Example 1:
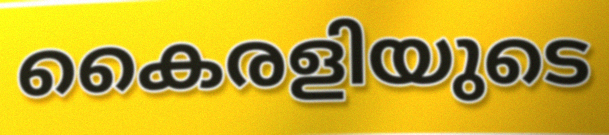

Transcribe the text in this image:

കൈരളിയുടെ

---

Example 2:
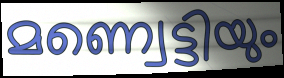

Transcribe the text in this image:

മണ്വെട്ടിയും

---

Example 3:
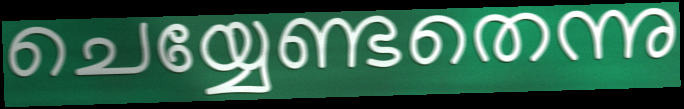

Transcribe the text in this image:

ചെയ്യേണ്ടതെന്നു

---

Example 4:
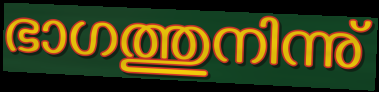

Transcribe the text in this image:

ഭാഗത്തുനിന്നു്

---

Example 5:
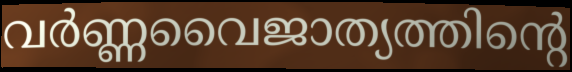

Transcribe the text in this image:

വർണ്ണവൈജാത്യത്തിന്റെ